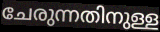
ചേരുന്നതിനുള്ള